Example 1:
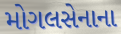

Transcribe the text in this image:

મોગલસેનાના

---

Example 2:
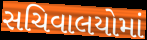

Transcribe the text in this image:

સચિવાલયોમાં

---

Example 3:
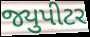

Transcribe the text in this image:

જ્યુપીટર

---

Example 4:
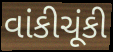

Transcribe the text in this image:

વાંકીચૂંકી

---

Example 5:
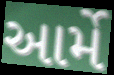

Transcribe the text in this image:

આર્મે